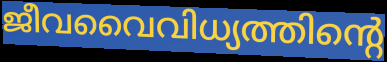
ജീവവൈവിധ്യത്തിന്റെ